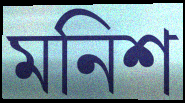
মনিশ